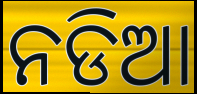
ନଡିଆ